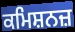
ਕਮਿਸ਼ਨਜ਼